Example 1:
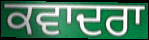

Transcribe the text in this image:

ਕਵਾਦਰਾ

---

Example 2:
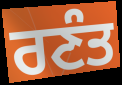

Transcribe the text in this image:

ਰਣੰਤ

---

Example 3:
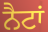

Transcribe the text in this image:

ਨੈਟਾਂ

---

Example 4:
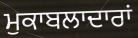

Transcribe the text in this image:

ਮੁਕਾਬਲਾਦਾਰਾਂ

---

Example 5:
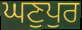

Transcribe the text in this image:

ਘਣੁਪੁਰ